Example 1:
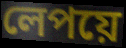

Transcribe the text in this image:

লেপয়ে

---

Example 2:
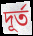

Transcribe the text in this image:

দূর্ত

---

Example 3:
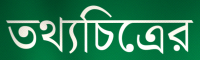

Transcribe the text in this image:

তথ্যচিত্রের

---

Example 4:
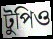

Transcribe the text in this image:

টুপিও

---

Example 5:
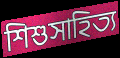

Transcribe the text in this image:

শিশুসাহিত্য